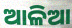
ଆଳିଆ